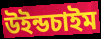
উইন্ডচাইম